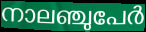
നാലഞ്ചുപേർ